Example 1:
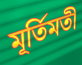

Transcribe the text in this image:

মূর্তিমতী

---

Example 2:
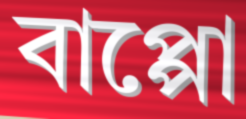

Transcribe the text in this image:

বাপ্পো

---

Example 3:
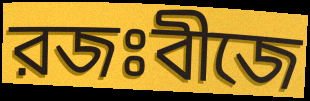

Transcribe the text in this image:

রজঃবীজে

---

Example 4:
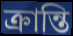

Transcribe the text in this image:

ক্রান্তি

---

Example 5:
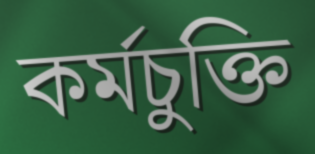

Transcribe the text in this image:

কর্মচুক্তি